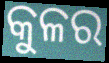
କୁଳର